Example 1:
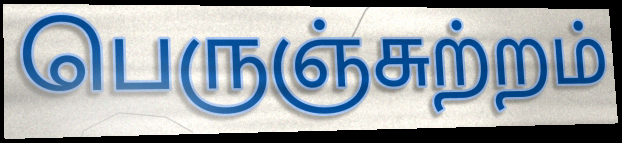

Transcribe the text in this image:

பெருஞ்சுற்றம்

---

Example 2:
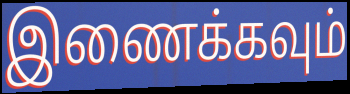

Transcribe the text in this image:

இணைக்கவும்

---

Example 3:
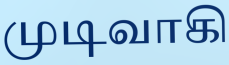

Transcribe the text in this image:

முடிவாகி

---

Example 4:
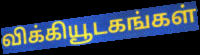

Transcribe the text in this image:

விக்கியூடகங்கள்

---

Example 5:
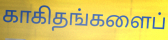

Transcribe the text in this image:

காகிதங்களைப்